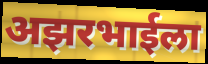
अझरभाईला